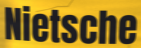
Nietsche